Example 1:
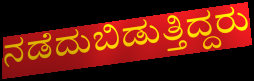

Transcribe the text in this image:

ನಡೆದುಬಿಡುತ್ತಿದ್ದರು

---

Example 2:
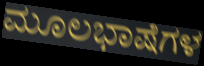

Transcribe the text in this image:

ಮೂಲಭಾಷೆಗಳ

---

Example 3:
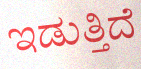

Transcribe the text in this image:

ಇಡುತ್ತಿದೆ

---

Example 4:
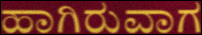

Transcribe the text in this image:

ಹಾಗಿರುವಾಗ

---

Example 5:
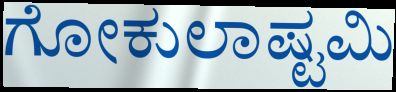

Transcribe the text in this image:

ಗೋಕುಲಾಷ್ಟಮಿ